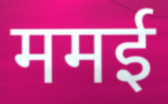
ममई